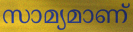
സാമ്യമാണ്